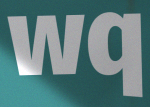
wq